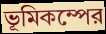
ভূমিকম্পের